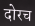
दोरच